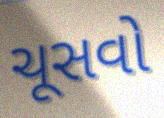
ચૂસવો